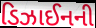
ડિઝાઈનની